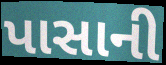
પાસાની